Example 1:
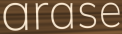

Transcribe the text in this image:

arase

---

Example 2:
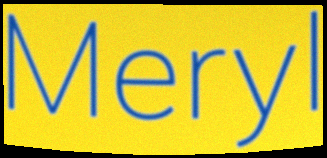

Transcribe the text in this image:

Meryl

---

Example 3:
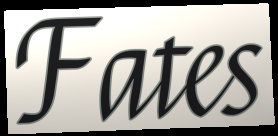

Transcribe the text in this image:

Fates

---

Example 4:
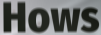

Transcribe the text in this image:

Hows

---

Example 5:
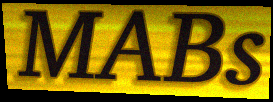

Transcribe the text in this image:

MABs